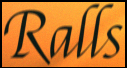
Ralls